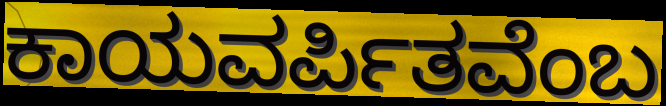
ಕಾಯವರ್ಪಿತವೆಂಬ